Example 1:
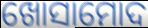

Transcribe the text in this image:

ଖୋସାମୋଦ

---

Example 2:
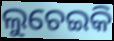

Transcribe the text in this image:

ଲୁଚେଇକି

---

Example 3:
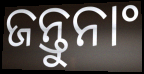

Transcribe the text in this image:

ଜନ୍ତୁନାଂ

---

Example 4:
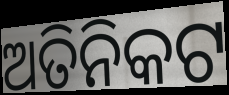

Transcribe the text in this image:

ଅତିନିକଟ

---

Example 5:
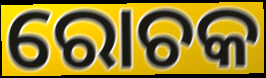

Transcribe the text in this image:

ରୋଚକ